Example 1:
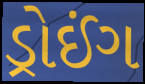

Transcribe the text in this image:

ડ્રોઈંગ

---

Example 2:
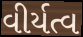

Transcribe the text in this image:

વીર્યત્વ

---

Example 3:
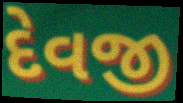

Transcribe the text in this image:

દેવજી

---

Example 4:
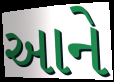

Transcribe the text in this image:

આને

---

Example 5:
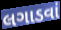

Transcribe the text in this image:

લગાડવાં